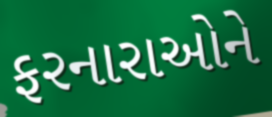
ફરનારાઓને